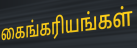
கைங்கரியங்கள்